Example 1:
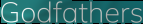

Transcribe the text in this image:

Godfathers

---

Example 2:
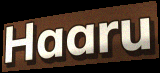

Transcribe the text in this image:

Haaru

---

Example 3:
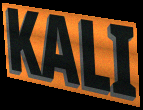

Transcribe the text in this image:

KALI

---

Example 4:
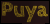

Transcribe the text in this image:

Puya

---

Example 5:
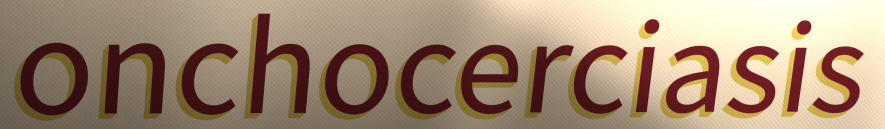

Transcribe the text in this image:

onchocerciasis